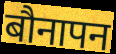
बौनापन